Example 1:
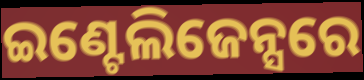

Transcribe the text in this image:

ଇଣ୍ଟେଲିଜେନ୍ସରେ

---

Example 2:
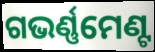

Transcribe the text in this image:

ଗଭର୍ଣ୍ଣମେଣ୍ଟ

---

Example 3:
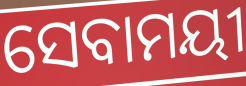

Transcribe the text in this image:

ସେବାମୟୀ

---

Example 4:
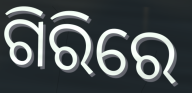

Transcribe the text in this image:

ଗିରିରେ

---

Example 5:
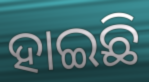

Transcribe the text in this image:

ହାଇଛି